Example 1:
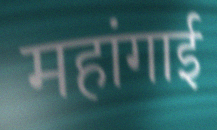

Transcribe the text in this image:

महांगाई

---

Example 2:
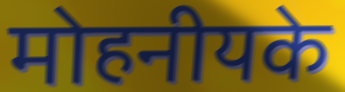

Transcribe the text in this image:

मोहनीयके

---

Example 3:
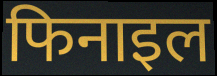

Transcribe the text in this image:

फिनाइल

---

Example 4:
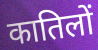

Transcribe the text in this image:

कातिलों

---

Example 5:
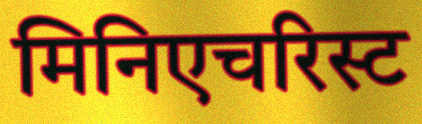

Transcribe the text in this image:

मिनिएचरिस्ट